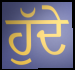
ਹੁੱਦੇ